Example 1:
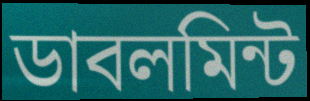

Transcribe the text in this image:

ডাবলমিন্ট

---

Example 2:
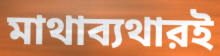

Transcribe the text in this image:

মাথাব্যথারই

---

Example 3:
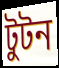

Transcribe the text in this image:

টুটন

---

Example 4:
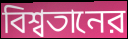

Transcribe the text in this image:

বিশ্বতানের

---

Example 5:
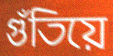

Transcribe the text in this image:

গুঁতিয়ে